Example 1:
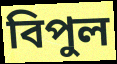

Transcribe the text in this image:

বিপুল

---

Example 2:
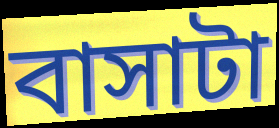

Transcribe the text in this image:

বাসাটা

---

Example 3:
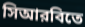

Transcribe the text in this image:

সিআরবিতে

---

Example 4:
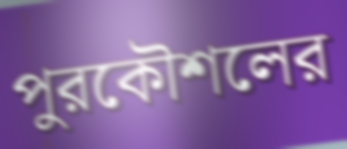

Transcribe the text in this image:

পুরকৌশলের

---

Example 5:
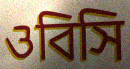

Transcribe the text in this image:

ওবিসি